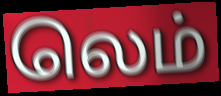
லெம்